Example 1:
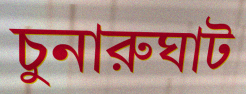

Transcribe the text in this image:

চুনারুঘাট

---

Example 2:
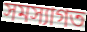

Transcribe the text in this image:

সমস্যাগত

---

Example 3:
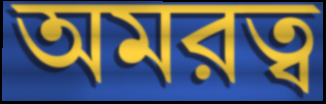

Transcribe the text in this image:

অমরত্ব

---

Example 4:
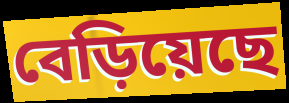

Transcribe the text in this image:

বেড়িয়েছে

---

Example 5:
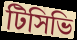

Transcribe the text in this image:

টিসিভি